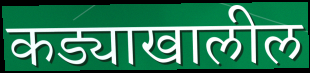
कड्याखालील